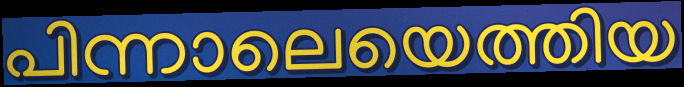
പിന്നാലെയെത്തിയ